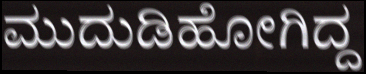
ಮುದುಡಿಹೋಗಿದ್ದ